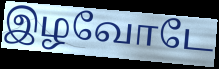
இழவோடே